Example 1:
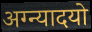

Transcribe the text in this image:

अग्न्यादयो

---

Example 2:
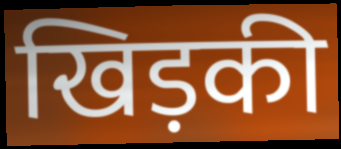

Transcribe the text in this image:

खिड़की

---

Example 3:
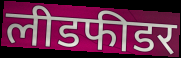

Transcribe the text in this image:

लीडफीडर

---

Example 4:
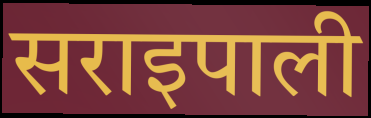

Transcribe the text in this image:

सराइपाली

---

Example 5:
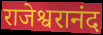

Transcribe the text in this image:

राजेश्वरानंद